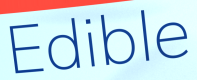
Edible